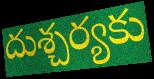
దుశ్చర్యకు